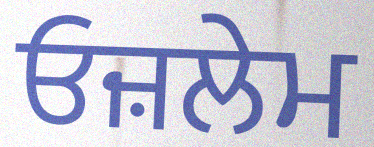
ਓਜ਼ਲੇਮ